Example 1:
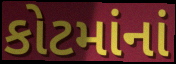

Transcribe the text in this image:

કોટમાંનાં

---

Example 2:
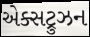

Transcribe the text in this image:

એક્સટ્રુઝન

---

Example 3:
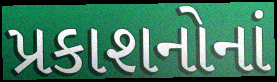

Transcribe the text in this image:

પ્રકાશનોનાં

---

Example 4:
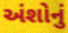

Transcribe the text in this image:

અંશોનું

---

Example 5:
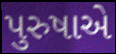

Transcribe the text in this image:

પુરુષાએ